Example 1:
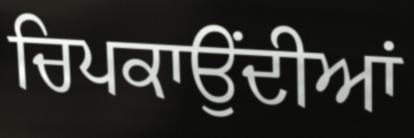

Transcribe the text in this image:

ਚਿਪਕਾਉਂਦੀਆਂ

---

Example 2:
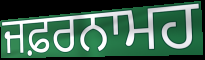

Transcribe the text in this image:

ਜਫ਼ਰਨਾਮਹ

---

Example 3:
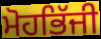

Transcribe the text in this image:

ਮੋਹਭਿੱਜੀ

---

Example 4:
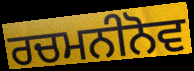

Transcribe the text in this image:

ਰਚਮਨੀਨੋਵ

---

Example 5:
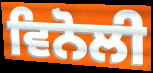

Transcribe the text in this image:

ਵਿਨੋਲੀ